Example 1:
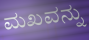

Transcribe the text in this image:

ಮಖವನ್ನು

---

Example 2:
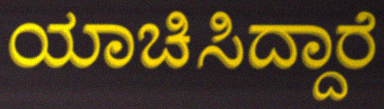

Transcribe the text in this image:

ಯಾಚಿಸಿದ್ದಾರೆ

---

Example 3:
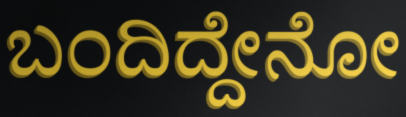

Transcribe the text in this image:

ಬಂದಿದ್ದೇನೋ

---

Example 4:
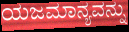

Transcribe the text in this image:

ಯಜಮಾನ್ಯವನ್ನು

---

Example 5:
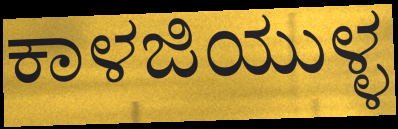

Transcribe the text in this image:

ಕಾಳಜಿಯುಳ್ಳ